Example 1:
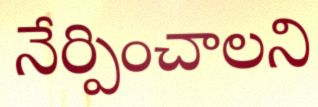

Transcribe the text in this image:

నేర్పించాలని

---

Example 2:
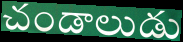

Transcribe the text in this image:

చండాలుడు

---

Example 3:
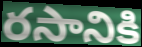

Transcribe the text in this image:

రసానికి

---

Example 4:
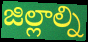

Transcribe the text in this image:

జిల్లాల్ని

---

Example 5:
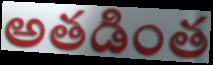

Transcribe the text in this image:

అతడింత